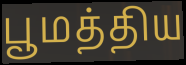
பூமத்திய